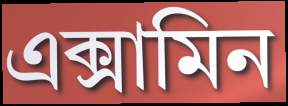
এক্সামিন